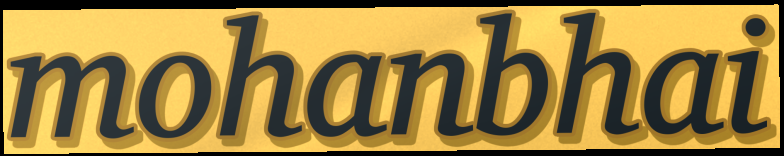
mohanbhai